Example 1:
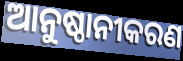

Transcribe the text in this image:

ଆନୁଷ୍ଠାନୀକରଣ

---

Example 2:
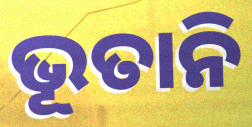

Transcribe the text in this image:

ଭୂତାନି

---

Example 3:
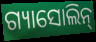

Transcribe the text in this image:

ଗ୍ୟାସୋଲିନ୍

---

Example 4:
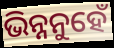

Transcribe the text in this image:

ଭିନ୍ନନୁହେଁ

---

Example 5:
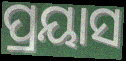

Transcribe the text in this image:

ପ୍ରୟାସ